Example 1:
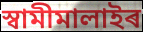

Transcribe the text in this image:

স্বামীমালাইৰ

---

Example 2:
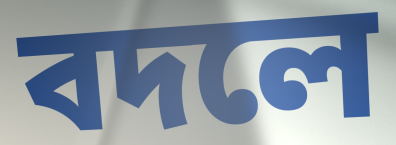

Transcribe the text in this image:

বদলে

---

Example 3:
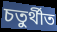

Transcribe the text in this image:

চতুৰ্থীত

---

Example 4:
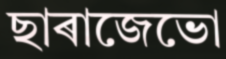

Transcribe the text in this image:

ছাৰাজেভো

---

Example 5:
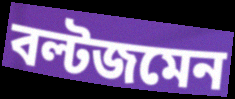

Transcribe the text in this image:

বল্টজমেন